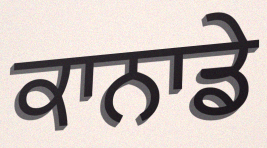
ਕਾਨਾਡੇ